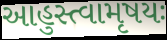
આહુસ્ત્વામૃષયઃ